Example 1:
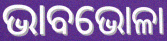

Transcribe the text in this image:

ଭାବଭୋଳା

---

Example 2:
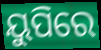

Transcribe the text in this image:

ୟୁପିରେ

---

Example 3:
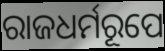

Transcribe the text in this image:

ରାଜଧର୍ମରୂପେ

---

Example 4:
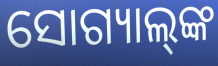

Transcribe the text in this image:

ସୋଗ୍ୟାଲ୍‌ଙ୍କ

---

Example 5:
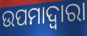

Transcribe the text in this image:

ଉପମାଦ୍ୱାରା